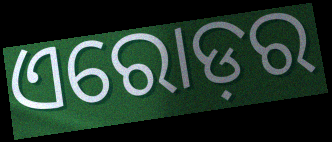
ଏରୋଡ଼ର